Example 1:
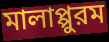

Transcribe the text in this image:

মালাপ্পুরম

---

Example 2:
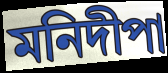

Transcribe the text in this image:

মনিদীপা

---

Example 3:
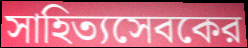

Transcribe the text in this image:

সাহিত্যসেবকের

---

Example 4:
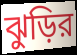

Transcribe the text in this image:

ঝুড়ির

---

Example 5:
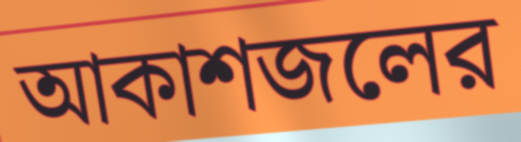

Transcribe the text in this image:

আকাশজলের